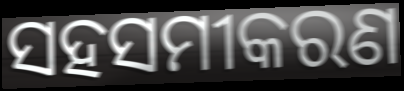
ସହସମୀକରଣ